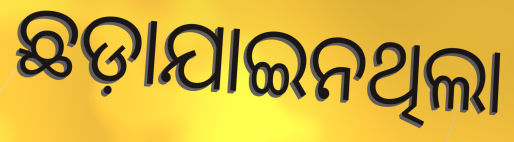
ଛଡ଼ାଯାଇନଥିଲା